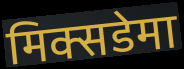
मिक्सडेमा